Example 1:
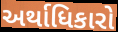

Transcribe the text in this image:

અર્થાધિકારો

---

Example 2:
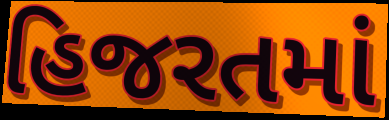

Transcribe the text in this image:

હિજરતમાં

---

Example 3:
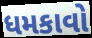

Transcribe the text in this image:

ધમકાવો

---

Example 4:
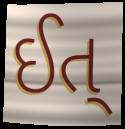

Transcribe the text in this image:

ઈત્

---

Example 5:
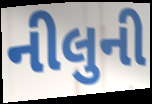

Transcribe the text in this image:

નીલુની